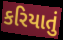
કરિયાતું